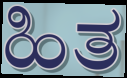
ಹಿತ